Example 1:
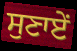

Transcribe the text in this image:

ਸੁਣਾਏਂ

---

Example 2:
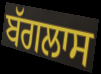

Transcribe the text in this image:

ਬੱਗਲਾਸ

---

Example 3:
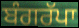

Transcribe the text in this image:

ਬੰਗਰੱਪਾ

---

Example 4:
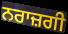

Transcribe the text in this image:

ਨਰਾਜ਼ਗੀ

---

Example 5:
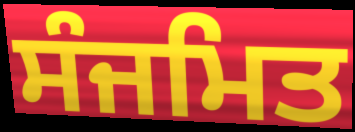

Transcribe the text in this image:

ਸੰਜਮਿਤ